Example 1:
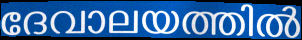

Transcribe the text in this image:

ദേവാലയത്തിൽ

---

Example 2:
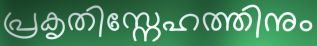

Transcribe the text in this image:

പ്രകൃതിസ്നേഹത്തിനും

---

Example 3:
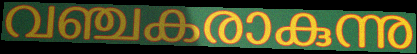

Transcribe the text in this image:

വഞ്ചകരാകുന്നു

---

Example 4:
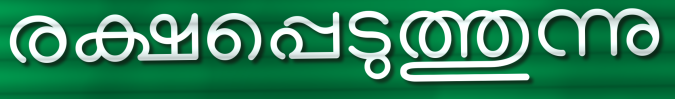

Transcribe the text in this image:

രക്ഷപ്പെടുത്തുന്നു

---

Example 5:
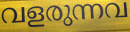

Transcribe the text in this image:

വളരുന്നവ